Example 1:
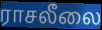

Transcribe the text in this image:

ராசலீலை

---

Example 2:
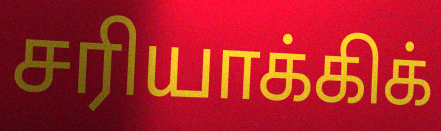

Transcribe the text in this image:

சரியாக்கிக்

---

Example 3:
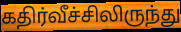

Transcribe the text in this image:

கதிர்வீச்சிலிருந்து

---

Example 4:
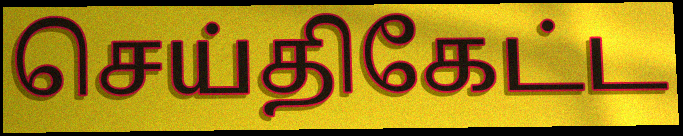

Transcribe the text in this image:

செய்திகேட்ட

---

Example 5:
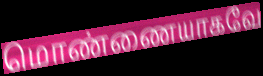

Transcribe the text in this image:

மொண்ணையாகவே